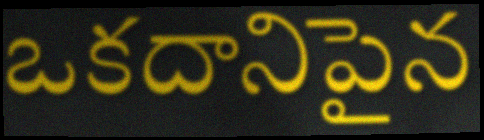
ఒకదానిపైన